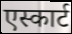
एस्कार्ट